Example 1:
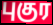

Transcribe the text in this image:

புகுர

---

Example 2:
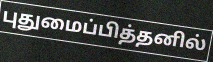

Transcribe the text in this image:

புதுமைப்பித்தனில்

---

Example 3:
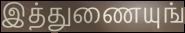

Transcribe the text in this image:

இத்துணையுங்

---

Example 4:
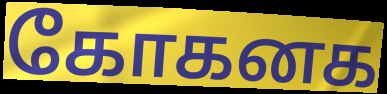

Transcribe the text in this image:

கோகனக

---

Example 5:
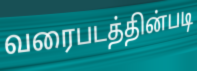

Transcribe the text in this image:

வரைபடத்தின்படி